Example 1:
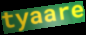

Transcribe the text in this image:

tyaare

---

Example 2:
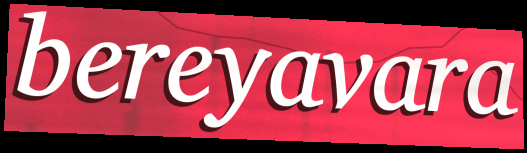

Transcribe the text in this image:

bereyavara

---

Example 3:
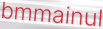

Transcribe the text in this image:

bmmainul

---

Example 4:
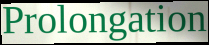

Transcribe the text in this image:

Prolongation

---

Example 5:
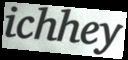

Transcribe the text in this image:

ichhey